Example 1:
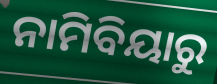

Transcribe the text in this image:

ନାମିବିୟାରୁ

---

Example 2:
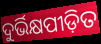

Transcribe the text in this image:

ଦୁର୍ଭିକ୍ଷପୀଡ଼ିତ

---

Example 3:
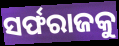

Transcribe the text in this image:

ସର୍ଫରାଜକୁ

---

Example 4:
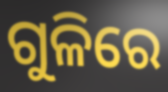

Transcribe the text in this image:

ଗୁଳିରେ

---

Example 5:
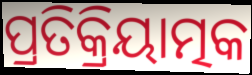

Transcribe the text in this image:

ପ୍ରତିକ୍ରିୟାତ୍ମକ